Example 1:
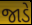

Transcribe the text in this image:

જાડે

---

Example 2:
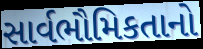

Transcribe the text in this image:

સાર્વભૌમિકતાનો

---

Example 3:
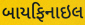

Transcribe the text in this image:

બાયફિનાઇલ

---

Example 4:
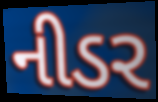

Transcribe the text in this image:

નીડર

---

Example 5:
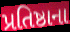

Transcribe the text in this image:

પ્રતિષ્ઠાના